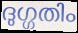
ദുഗ്ഗതിം